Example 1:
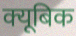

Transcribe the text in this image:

क्‍यूबिक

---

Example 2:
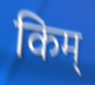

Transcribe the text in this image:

किम्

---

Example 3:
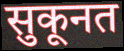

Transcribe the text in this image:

सुकूनत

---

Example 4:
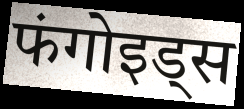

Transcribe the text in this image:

फंगोइड्स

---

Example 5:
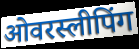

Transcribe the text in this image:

ओवरस्लीपिंग